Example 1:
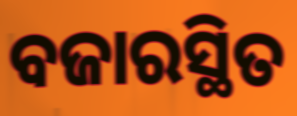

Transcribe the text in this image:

ବଜାରସ୍ଥିତ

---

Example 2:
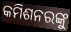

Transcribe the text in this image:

କମିଶନରଙ୍କୁ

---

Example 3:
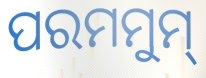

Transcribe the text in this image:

ପରମମୁମ୍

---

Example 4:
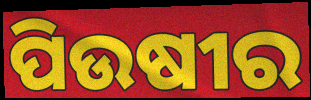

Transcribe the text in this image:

ପିଉଷୀର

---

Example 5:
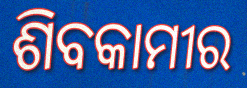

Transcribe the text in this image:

ଶିବକାମୀର